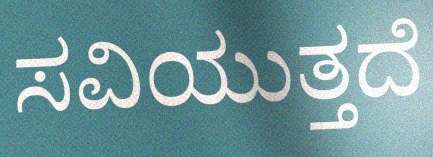
ಸವಿಯುತ್ತದೆ